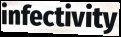
infectivity